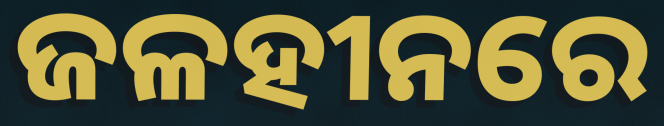
ଜଳହୀନରେ